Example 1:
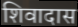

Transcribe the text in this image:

शिवादास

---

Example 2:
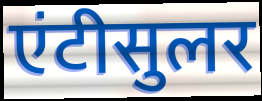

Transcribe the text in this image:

एंटीसुलर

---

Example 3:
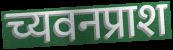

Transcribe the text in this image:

च्‍यवनप्राश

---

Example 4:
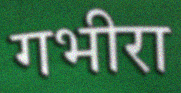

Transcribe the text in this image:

गभीरा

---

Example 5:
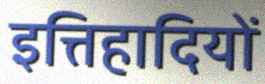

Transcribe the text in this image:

इत्तिहादियों